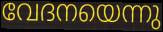
വേദനയെന്നു